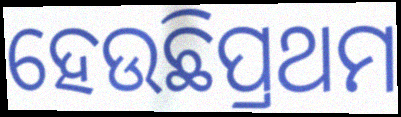
ହେଉଛିପ୍ରଥମ